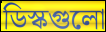
ডিস্কগুলো